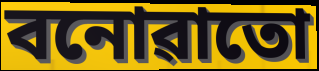
বনোৱাতো